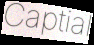
Captial